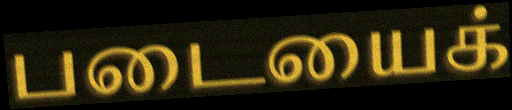
படையைக்